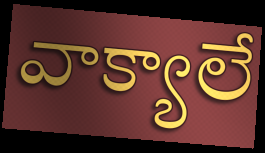
వాక్యాలే